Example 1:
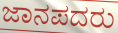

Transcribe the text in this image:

ಜಾನಪದರು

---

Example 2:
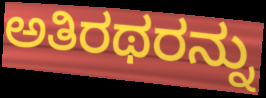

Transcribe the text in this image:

ಅತಿರಥರನ್ನು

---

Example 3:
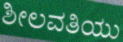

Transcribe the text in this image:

ಶೀಲವತಿಯು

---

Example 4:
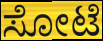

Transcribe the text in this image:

ಸೋಟೆ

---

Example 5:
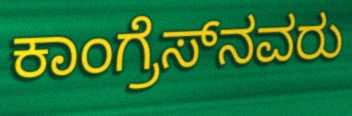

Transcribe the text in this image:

ಕಾಂಗ್ರೆಸ್‌ನವರು